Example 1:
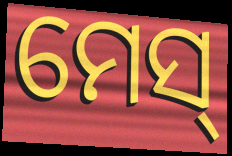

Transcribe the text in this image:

ମେସ୍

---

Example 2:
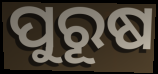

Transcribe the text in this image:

ପୁରୂଷ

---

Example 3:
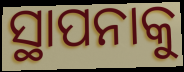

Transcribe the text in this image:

ସ୍ଥାପନାକୁ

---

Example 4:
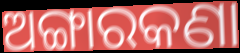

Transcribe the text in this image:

ଅଙ୍ଗାରକଣା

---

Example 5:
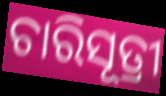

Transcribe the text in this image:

ଚାରିସୂତ୍ରୀ